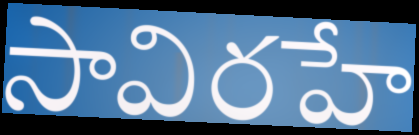
సావిరహే